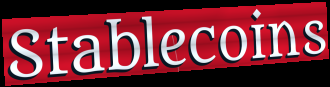
Stablecoins